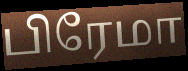
பிரேமா